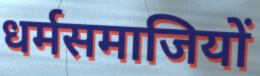
धर्मसमाजियों